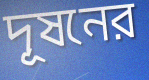
দূষনের